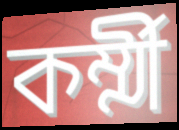
কর্ম্মী